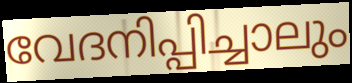
വേദനിപ്പിച്ചാലും